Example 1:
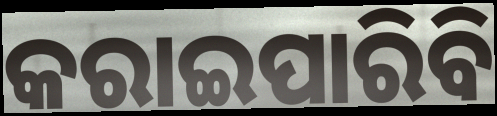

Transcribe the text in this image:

କରାଇପାରିବି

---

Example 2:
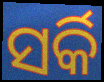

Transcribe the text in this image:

ସର୍କି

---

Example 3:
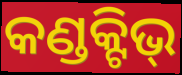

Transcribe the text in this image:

କଣ୍ଡକ୍ଟିଭ୍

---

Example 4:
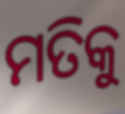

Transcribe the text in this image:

ମତିକୁ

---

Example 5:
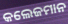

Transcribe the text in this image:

କଲେଜମାନ